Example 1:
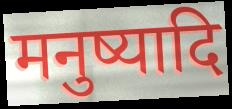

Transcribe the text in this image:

मनुष्यादि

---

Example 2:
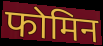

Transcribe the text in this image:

फोमिन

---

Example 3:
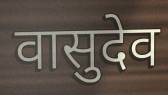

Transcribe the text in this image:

वासुदेव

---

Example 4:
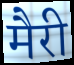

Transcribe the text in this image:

मैरी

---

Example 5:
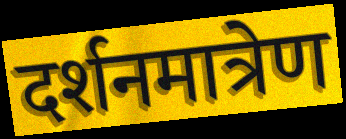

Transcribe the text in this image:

दर्शनमात्रेण